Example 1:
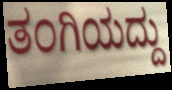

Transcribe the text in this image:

ತಂಗಿಯದ್ದು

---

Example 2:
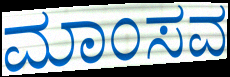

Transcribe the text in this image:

ಮಾಂಸವ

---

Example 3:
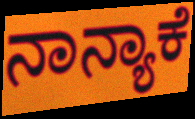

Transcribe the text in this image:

ನಾನ್ಯಾಕೆ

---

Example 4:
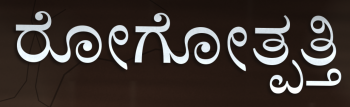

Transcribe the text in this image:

ರೋಗೋತ್ಪತ್ತಿ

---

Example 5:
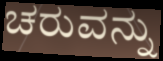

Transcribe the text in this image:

ಚರುವನ್ನು